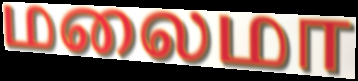
மலைமா